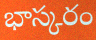
భాస్కరం